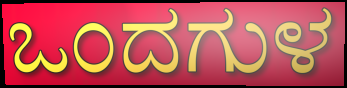
ಒಂದಗುಳ